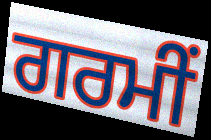
ਗਰਮੀਂ